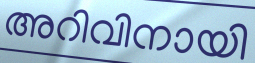
അറിവിനായി